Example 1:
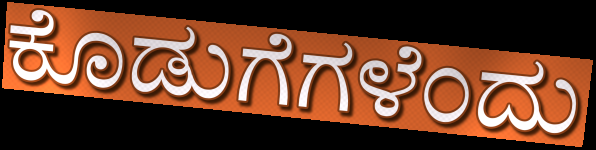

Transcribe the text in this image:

ಕೊಡುಗೆಗಳೆಂದು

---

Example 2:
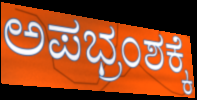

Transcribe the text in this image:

ಅಪಭ್ರಂಶಕ್ಕೆ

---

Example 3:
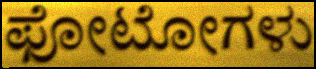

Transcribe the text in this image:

ಫೋಟೋಗಳು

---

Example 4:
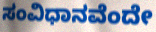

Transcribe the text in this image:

ಸಂವಿಧಾನವೆಂದೇ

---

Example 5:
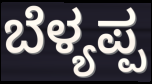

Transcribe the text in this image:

ಬೆಳ್ಯಪ್ಪ